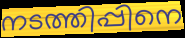
നടത്തിപ്പിനെ